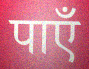
पाएँ